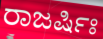
ರಾಜರ್ಷಿಃ